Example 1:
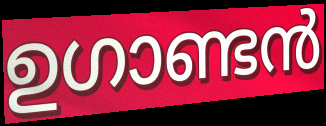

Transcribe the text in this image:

ഉഗാണ്ടൻ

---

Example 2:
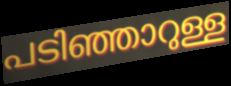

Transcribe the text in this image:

പടിഞ്ഞാറുള്ള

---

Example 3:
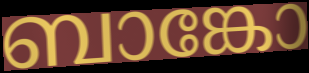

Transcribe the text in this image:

ബാങ്കോ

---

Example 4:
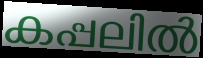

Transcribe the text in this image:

കപ്പലിൽ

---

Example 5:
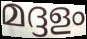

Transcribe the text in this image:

മദ്ദളം